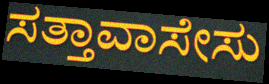
ಸತ್ತಾವಾಸೇಸು